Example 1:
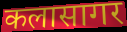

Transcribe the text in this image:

कलासागर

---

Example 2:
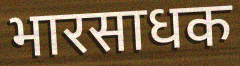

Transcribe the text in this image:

भारसाधक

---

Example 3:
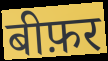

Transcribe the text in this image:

बीफ़र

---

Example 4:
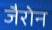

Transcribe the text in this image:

जैरोन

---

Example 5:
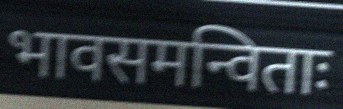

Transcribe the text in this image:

भावसमन्विताः